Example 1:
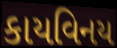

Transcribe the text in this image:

કાયવિનય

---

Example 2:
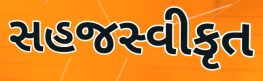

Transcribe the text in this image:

સહજસ્વીકૃત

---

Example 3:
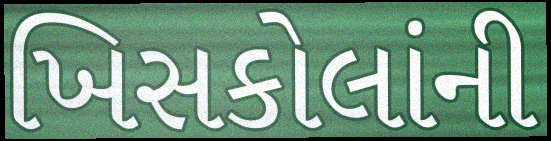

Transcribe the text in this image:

ખિસકોલાંની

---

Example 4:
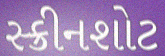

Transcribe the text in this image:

સ્ક્રીનશોટ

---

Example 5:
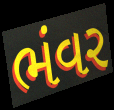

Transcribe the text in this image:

ભંવર